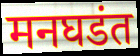
मनघडंत